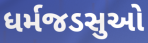
ધર્મજડસુઓ